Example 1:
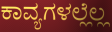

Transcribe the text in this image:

ಕಾವ್ಯಗಳಲ್ಲೆಲ್ಲ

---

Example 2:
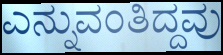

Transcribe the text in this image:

ಎನ್ನುವಂತಿದ್ದವು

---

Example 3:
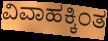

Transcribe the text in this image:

ವಿವಾಹಕ್ಕಿಂತ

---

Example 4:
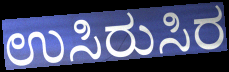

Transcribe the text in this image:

ಉಸಿರುಸಿರ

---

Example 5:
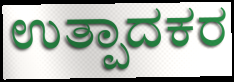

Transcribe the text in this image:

ಉತ್ಪಾದಕರ